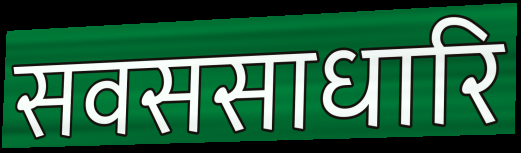
सवससाधारि